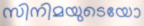
സിനിമയുടെയോ